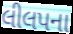
લીલપના